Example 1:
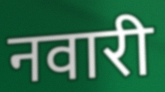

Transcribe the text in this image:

नवारी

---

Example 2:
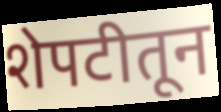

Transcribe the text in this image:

शेपटीतून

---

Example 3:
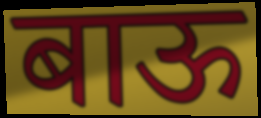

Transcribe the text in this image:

बाऊ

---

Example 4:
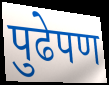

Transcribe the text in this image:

पुढेपण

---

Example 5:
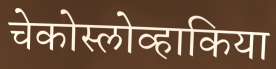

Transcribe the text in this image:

चेकोस्लोव्हाकिया